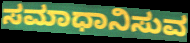
ಸಮಾಧಾನಿಸುವ